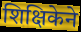
शिक्षिकेने